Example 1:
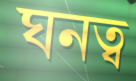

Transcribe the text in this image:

ঘনত্ব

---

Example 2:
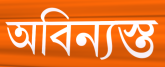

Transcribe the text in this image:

অবিন্যস্ত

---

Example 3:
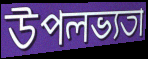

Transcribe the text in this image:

উপলভ্যতা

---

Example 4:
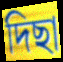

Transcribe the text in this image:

দিছা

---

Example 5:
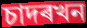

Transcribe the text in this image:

চাদৰখন